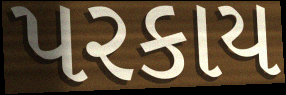
પરકાય